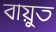
বায়ুত